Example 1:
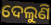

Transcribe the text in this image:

ଦେଲୁଣି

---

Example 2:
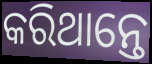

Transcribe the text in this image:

କରିଥାନ୍ତେ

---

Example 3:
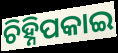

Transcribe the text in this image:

ଚିହ୍ନିପକାଇ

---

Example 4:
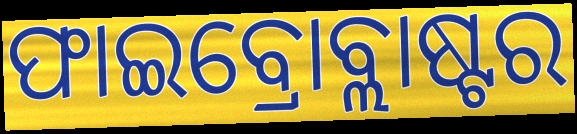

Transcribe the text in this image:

ଫାଇବ୍ରୋବ୍ଲାଷ୍ଟର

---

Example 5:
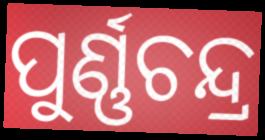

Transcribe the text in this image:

ପୁର୍ଣ୍ଣଚନ୍ଦ୍ର